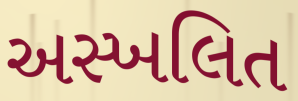
અસ્ખલિત